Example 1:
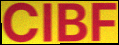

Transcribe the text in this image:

CIBF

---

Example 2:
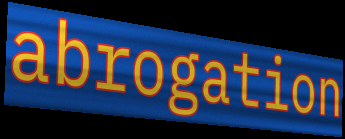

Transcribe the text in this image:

abrogation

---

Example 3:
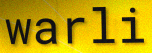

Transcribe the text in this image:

warli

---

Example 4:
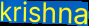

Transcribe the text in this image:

krishna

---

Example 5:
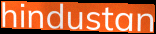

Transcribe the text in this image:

hindustan